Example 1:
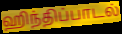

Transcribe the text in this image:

ஹிந்திப்பாடல்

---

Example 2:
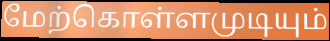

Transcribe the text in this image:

மேற்கொள்ளமுடியும்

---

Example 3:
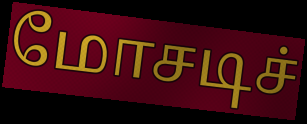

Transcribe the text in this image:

மோசடிச்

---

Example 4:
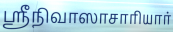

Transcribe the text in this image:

ஸ்ரீநிவாஸாசாரியார்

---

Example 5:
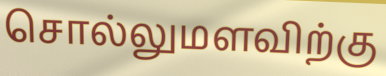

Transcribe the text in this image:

சொல்லுமளவிற்கு